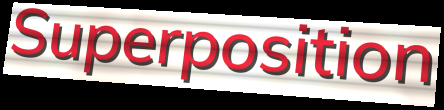
Superposition